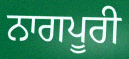
ਨਾਗਪੂਰੀ